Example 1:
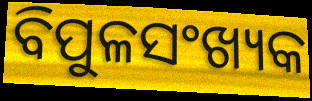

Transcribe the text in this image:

ବିପୁଳସଂଖ୍ୟକ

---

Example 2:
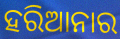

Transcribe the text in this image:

ହରିଆନାର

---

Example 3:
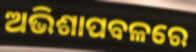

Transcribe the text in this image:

ଅଭିଶାପବଳରେ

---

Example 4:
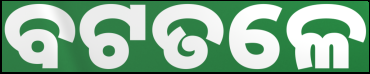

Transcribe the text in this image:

ବଟତଳେ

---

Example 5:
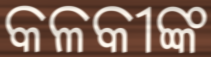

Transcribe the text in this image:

କଳକୀଙ୍କ